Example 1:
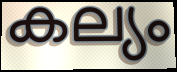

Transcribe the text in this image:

കല്യം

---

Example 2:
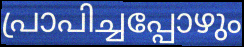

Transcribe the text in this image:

പ്രാപിച്ചപ്പോഴും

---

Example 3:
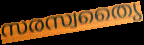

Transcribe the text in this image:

സരസ്വത്യൈ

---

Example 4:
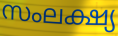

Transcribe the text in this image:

സംലക്ഷ്യ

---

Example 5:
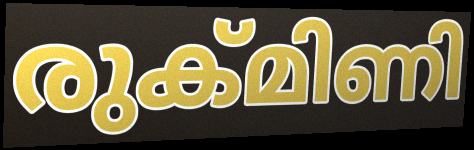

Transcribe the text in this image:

രുക്മിണി